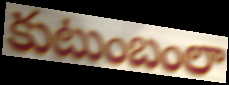
కుటుంబంలా